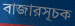
বাজারসূচক